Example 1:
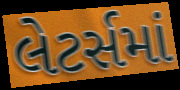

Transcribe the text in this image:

લેટર્સમાં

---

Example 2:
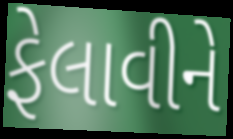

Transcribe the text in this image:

ફેલાવીને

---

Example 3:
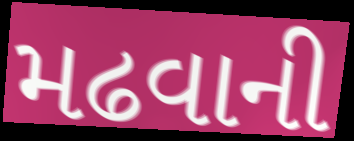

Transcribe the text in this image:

મઢવાની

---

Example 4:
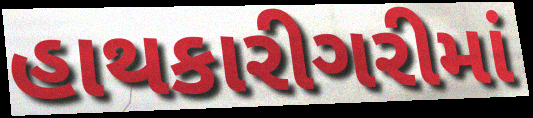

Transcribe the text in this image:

હાથકારીગરીમાં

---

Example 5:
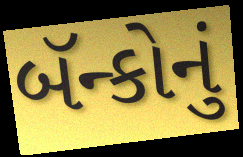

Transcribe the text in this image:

બૅન્કોનું